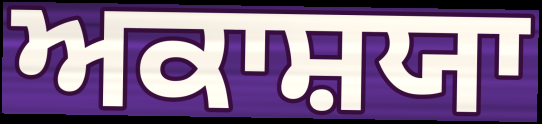
ਅਕਾਸ਼ਯਾ